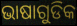
ଭାଷାଗୁଡିକ